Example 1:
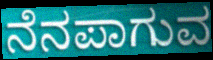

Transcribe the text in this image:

ನೆನಪಾಗುವ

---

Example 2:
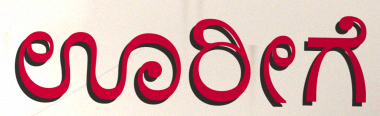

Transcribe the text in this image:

ಊರೀಗೆ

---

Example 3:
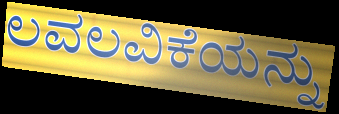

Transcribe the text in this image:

ಲವಲವಿಕೆಯನ್ನು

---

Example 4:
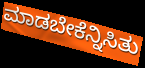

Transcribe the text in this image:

ಮಾಡಬೇಕೆನ್ನಿಸಿತು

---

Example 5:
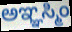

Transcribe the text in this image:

ಅಞ್ಞಸ್ಮಿಂ